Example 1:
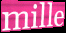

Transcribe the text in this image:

mille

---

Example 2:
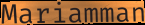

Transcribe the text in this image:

Mariamman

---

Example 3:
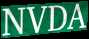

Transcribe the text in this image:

NVDA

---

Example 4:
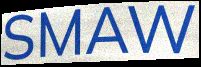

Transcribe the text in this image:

SMAW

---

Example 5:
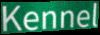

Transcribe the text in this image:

Kennel